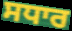
ਸਧਾਰ